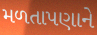
મળતાપણાને